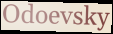
Odoevsky